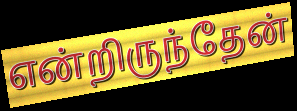
என்றிருந்தேன்